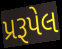
પ્રરૂપેલ